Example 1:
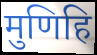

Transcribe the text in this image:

मुणिहि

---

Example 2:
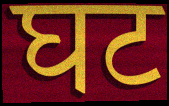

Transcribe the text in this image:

घट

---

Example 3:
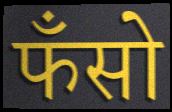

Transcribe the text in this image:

फँसो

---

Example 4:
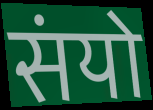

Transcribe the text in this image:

संयो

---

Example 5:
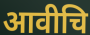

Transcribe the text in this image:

आवीचि